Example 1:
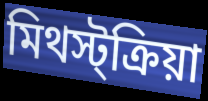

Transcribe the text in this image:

মিথস্ট্ক্রিয়া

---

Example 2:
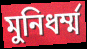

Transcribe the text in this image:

মুনিধর্ম্ম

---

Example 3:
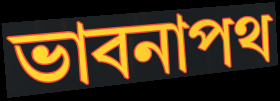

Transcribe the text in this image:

ভাবনাপথ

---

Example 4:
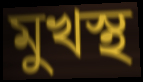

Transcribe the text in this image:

মুখস্থ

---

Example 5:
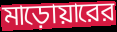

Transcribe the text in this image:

মাড়োয়ারের